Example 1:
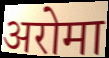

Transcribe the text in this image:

अरोमा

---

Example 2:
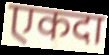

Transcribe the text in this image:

एकदा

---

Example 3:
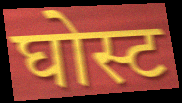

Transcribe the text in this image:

घोस्‍ट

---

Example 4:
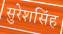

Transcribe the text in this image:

सुरेशसिंह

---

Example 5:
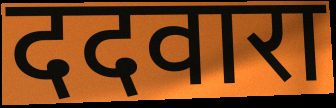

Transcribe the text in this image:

ददवारा